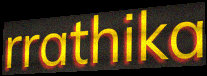
rrathika